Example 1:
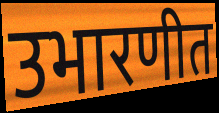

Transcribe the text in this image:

उभारणीत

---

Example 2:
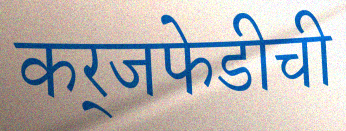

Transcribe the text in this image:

कर्जफेडीची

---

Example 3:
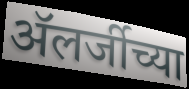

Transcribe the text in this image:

ॲलर्जीच्या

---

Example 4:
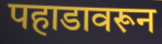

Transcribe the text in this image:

पहाडावरून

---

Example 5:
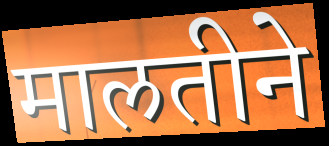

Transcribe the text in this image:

मालतीने